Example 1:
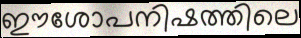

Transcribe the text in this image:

ഈശോപനിഷത്തിലെ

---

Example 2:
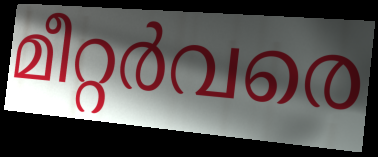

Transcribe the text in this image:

മീറ്റർവരെ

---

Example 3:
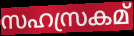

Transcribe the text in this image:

സഹസ്രകമ്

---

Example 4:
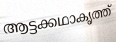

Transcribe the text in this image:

ആട്ടക്കഥാകൃത്ത്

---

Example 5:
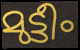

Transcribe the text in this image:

മുട്ടീം